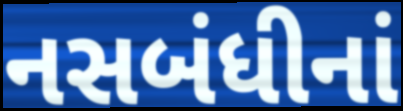
નસબંધીનાં